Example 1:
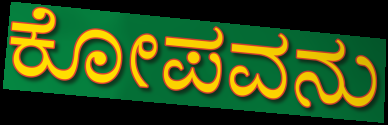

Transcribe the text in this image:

ಕೋಪವನು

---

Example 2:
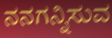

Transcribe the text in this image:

ನನಗನ್ನಿಸುವ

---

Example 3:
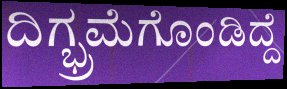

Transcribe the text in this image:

ದಿಗ್ಭ್ರಮೆಗೊಂಡಿದ್ದೆ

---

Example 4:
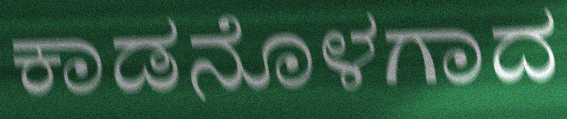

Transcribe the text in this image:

ಕಾಡನೊಳಗಾದ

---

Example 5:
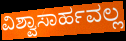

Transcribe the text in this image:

ವಿಶ್ವಾಸಾರ್ಹವಲ್ಲ